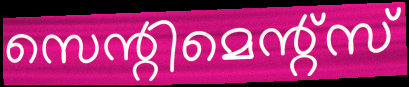
സെന്റിമെന്റ്സ്